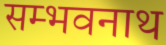
सम्भवनाथ